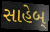
સાહેબ્